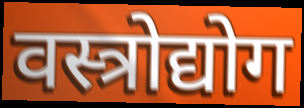
वस्त्रोद्योग